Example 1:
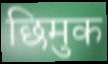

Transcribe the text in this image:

छिमुक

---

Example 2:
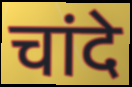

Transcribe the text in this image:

चांदे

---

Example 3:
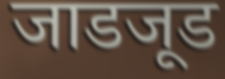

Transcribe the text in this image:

जाडजूड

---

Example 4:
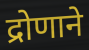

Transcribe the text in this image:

द्रोणाने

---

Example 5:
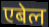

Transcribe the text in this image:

एबेल